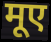
मूए